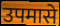
उपमासे